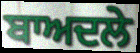
ਬਾਅਦਲੇ